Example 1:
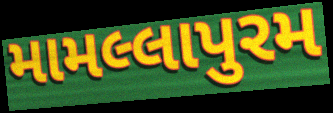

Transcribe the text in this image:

મામલ્લાપુરમ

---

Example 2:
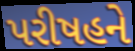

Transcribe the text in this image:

પરીષહને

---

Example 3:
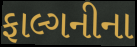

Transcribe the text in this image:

ફાલ્ગનીના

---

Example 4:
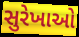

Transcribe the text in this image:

સુરેખાઓ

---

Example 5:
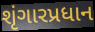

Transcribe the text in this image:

શૃંગારપ્રધાન